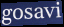
gosavi